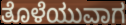
ತೊಳೆಯುವಾಗ